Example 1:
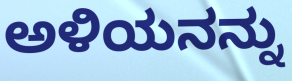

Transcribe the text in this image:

ಅಳಿಯನನ್ನು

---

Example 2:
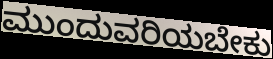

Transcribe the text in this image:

ಮುಂದುವರಿಯಬೇಕು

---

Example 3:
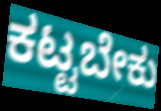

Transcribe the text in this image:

ಕಟ್ಟಬೇಕು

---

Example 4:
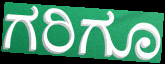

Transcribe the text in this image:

ಗರಿಗೂ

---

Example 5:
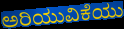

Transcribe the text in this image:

ಅರಿಯುವಿಕೆಯು